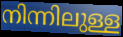
നിന്നിലുള്ള